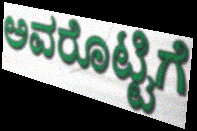
ಅವರೊಟ್ಟಿಗೆ